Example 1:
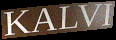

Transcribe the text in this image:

KALVI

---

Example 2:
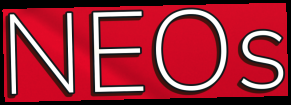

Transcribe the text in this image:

NEOs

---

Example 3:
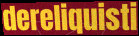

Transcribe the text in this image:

dereliquisti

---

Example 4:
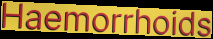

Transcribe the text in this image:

Haemorrhoids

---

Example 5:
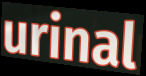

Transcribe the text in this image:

urinal